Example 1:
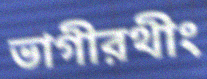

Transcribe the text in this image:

ভাগীরথীং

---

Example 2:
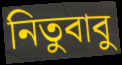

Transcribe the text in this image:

নিতুবাবু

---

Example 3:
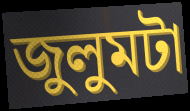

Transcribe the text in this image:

জুলুমটা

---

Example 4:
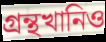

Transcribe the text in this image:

গ্রন্থখানিও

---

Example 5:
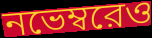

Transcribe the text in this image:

নভেম্বরেও